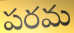
పరమ